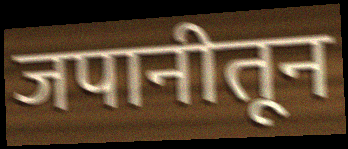
जपानीतून